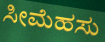
ಸೀಮೆಹಸು